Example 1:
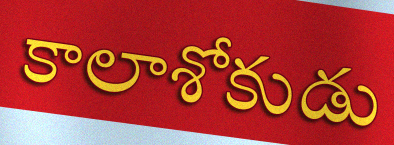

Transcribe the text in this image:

కాలాశోకుడు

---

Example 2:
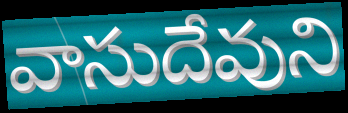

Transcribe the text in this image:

వాసుదేవుని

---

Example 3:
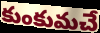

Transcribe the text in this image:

కుంకుమచే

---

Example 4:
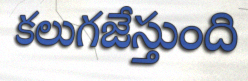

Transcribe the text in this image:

కలుగజేస్తుంది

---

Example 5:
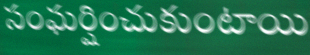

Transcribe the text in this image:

సంఘర్షించుకుంటాయి